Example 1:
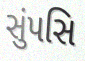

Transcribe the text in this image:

સુંપસિ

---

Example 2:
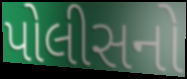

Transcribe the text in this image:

પોલીસનો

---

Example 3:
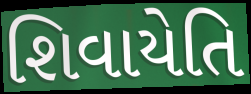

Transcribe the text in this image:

શિવાયેતિ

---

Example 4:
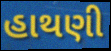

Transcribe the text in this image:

હાથણી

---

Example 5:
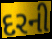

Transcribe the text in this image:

દરની